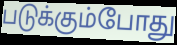
படுக்கும்போது